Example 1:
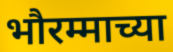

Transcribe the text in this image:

भौरम्माच्या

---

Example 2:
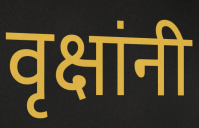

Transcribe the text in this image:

वृक्षांनी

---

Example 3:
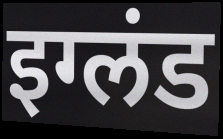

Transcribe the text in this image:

इग्लंड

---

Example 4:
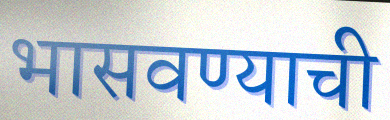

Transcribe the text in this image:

भासवण्याची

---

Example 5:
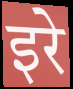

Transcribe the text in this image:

इरे